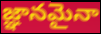
జ్ఞానమైనా